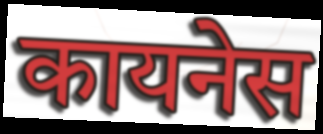
कायनेस